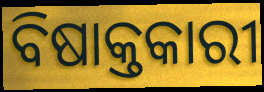
ବିଷାକ୍ତକାରୀ